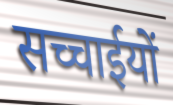
सच्चाईयों